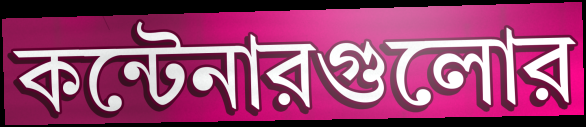
কন্টেনারগুলোর